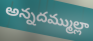
అన్నదమ్ముల్లా